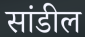
सांडील